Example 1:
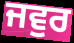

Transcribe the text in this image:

ਜਵੁਰ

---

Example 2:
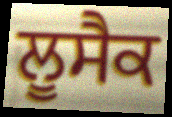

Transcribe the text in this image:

ਲੂਸੈਕ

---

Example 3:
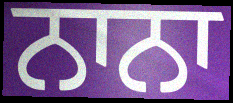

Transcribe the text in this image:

ਨਾਨਾ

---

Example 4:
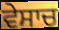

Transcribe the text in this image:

ਵੇਸਾਚ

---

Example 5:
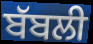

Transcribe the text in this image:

ਬੱਬਲੀ